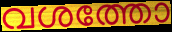
വശത്തോ